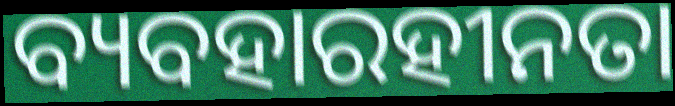
ବ୍ୟବହାରହୀନତା